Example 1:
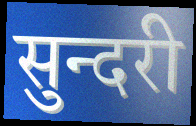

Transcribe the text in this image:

सुन्दरी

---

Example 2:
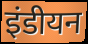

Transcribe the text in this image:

इंडीयन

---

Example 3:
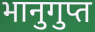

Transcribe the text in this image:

भानुगुप्त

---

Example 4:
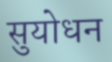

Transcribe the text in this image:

सुयोधन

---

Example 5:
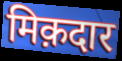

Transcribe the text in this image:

मिक़दार